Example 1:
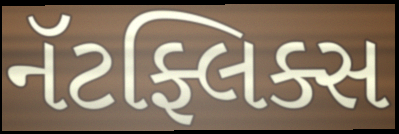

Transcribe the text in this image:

નૅટફ્લિક્સ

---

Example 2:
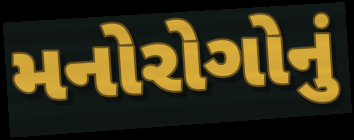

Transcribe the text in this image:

મનોરોગોનું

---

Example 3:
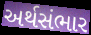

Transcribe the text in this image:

અર્થસંભાર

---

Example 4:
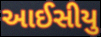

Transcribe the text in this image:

આઈસીયુ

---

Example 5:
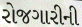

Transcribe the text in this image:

રોજગારીની